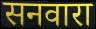
सनवारा